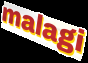
malagi